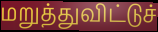
மறுத்துவிட்டுச்